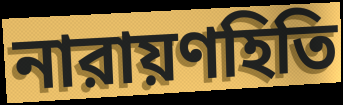
নারায়ণহিতি